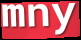
mny